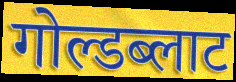
गोल्डब्लाट